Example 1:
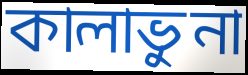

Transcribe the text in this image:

কালাভুনা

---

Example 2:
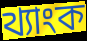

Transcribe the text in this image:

থ্যাংক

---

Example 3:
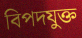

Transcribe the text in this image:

বিপদযুক্ত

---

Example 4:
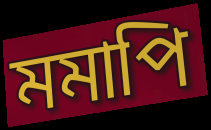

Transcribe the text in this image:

মমাপি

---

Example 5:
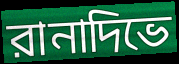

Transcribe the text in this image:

রানাদিভে